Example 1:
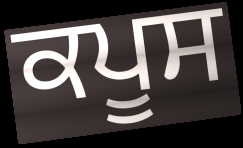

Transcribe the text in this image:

ਕਪੂਸ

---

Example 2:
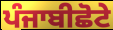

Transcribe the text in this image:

ਪੰਜਾਬੀਛੋਟੇ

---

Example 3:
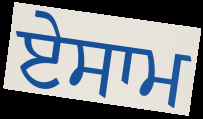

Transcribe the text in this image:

ਏਸਾਮ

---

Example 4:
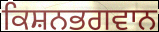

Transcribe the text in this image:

ਕਿਸ਼ਨਭਗਵਾਨ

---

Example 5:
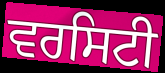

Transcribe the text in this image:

ਵਰਸਿਟੀ